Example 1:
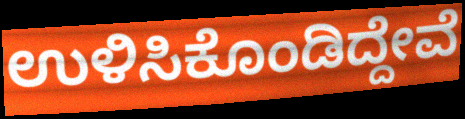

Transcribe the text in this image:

ಉಳಿಸಿಕೊಂಡಿದ್ದೇವೆ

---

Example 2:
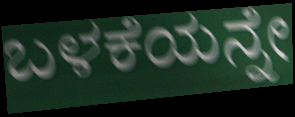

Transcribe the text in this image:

ಬಳಕೆಯನ್ನೇ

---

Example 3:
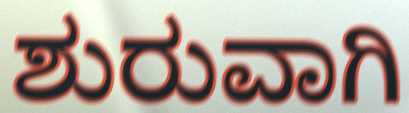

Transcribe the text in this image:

ಶುರುವಾಗಿ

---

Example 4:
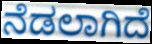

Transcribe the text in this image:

ನೆಡಲಾಗಿದೆ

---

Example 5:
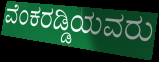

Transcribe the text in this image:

ವೆಂಕರಡ್ಡಿಯವರು